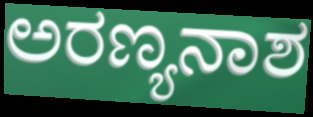
ಅರಣ್ಯನಾಶ